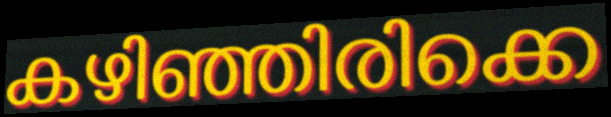
കഴിഞ്ഞിരിക്കെ